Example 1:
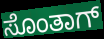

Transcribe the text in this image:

ಸೊಂತಾಗ್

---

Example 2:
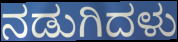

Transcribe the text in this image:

ನಡುಗಿದಳು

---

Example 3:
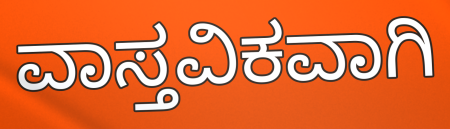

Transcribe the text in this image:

ವಾಸ್ತವಿಕವಾಗಿ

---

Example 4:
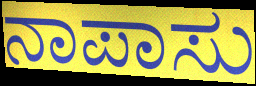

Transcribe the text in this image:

ನಾಪಾಸು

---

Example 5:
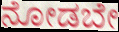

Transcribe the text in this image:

ನೋಡಬೇ